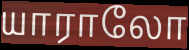
யாராலோ